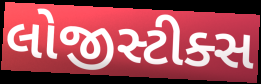
લોજીસ્ટીક્સ